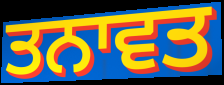
ਤਨਾਵਤ